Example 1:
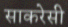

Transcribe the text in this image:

साकरेसी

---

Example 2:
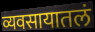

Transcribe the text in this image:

व्यवसायातलं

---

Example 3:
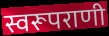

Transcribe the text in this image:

स्वरूपराणी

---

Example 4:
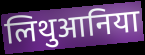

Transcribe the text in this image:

लिथुआनिया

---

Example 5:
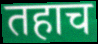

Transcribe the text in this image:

तहाच